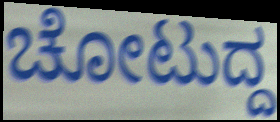
ಚೋಟುದ್ದ